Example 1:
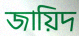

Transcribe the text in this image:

জায়িদ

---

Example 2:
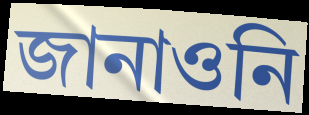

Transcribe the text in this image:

জানাওনি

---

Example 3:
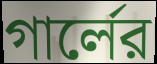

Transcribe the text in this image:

গার্লের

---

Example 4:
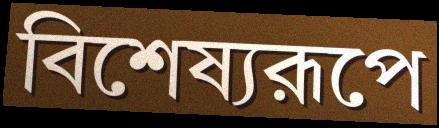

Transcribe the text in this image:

বিশেষ্যরূপে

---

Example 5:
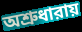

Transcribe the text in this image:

অশ্রুধারায়